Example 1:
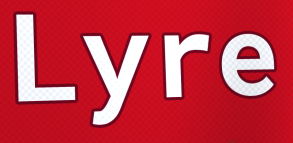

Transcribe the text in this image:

Lyre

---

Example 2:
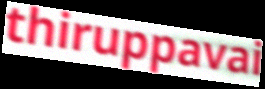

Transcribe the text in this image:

thiruppavai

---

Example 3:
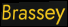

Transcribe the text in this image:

Brassey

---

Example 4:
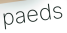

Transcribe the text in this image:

paeds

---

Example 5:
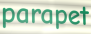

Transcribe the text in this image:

parapet